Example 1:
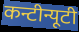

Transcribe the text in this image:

कन्टीन्यूटी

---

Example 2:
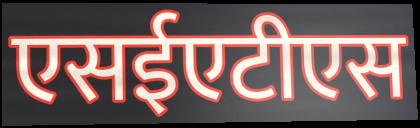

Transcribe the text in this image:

एसईएटीएस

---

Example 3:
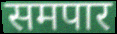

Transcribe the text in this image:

समपार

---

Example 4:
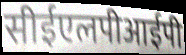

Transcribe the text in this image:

सीईएलपीआईपी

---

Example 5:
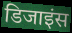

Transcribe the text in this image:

डिजाइंस